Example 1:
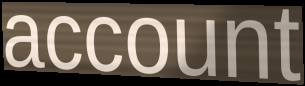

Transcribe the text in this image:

account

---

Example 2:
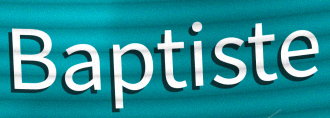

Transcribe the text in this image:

Baptiste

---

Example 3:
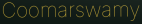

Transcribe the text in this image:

Coomarswamy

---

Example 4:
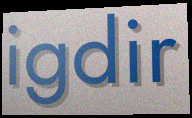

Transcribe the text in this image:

igdir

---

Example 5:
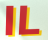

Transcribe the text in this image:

IL